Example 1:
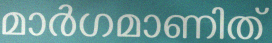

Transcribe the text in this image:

മാർഗമാണിത്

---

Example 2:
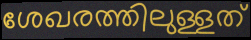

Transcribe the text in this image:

ശേഖരത്തിലുള്ളത്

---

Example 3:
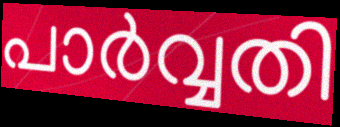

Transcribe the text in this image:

പാർവ്വതി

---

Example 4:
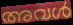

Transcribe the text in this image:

അവൾ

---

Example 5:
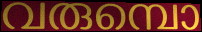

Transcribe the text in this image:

വരുമ്പൊ